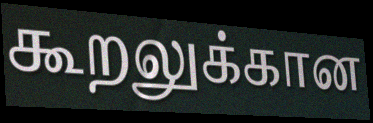
கூறலுக்கான